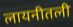
लायनीतली